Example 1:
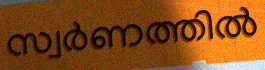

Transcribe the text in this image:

സ്വർണത്തിൽ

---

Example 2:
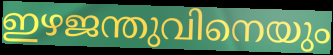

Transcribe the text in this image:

ഇഴജന്തുവിനെയും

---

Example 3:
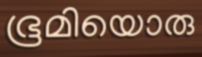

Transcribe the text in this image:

ഭൂമിയൊരു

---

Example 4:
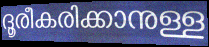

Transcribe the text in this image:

ദൂരീകരിക്കാനുള്ള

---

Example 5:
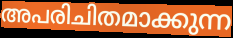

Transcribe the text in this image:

അപരിചിതമാക്കുന്ന